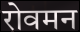
रोवमन